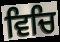
ਵਿਚਿ